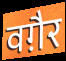
वग़ैर